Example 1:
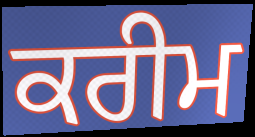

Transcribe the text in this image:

ਕਰੀਮ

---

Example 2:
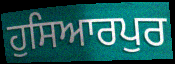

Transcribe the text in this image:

ਹੁਸਿਆਰਪੁਰ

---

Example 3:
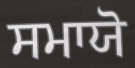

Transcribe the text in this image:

ਸਮਾਯੋ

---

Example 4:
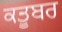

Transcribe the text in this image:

ਕਤੂਬਰ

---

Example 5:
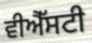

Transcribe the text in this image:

ਵੀਐੱਸਟੀ